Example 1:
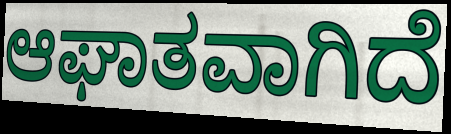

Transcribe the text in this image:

ಆಘಾತವಾಗಿದೆ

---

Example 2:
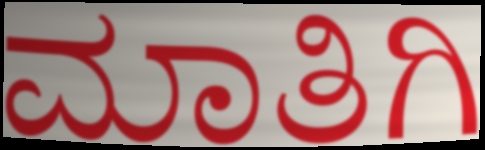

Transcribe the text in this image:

ಮಾತಿಗಿ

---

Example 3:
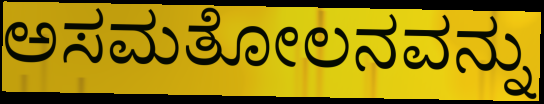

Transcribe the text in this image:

ಅಸಮತೋಲನವನ್ನು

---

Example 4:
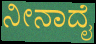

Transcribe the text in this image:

ನೀನಾದೈ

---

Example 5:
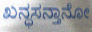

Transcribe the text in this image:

ಖನ್ಧಸನ್ತಾನೋ